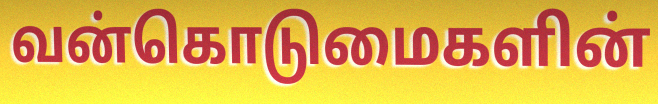
வன்கொடுமைகளின்